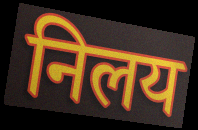
निलय